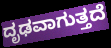
ದೃಢವಾಗುತ್ತದೆ